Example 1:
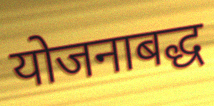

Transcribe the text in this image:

योजनाबद्ध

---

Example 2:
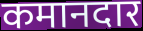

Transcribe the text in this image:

कमानदार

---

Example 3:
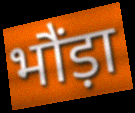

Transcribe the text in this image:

भौंड़ा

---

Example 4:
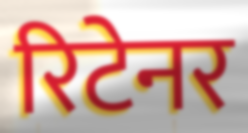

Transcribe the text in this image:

रिटेनर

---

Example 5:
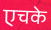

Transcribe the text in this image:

एचके